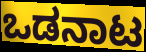
ಒಡನಾಟ